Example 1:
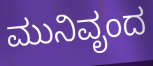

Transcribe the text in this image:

ಮುನಿವೃಂದ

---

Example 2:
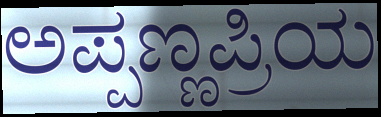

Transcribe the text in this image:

ಅಪ್ಪಣ್ಣಪ್ರಿಯ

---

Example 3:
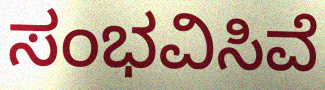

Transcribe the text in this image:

ಸಂಭವಿಸಿವೆ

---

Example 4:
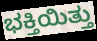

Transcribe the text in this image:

ಭಕ್ತಿಯಿತ್ತು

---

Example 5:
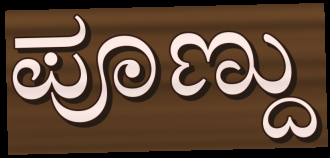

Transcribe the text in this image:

ಪೂಣ್ದು